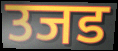
उजड